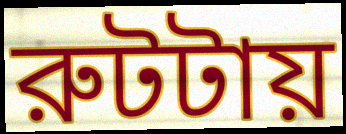
রুটটায়